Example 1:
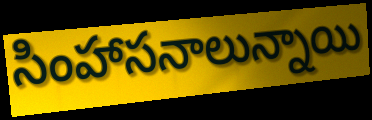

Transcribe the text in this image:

సింహాసనాలున్నాయి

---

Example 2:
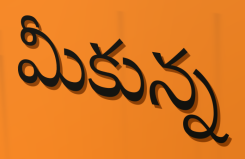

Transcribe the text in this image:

మీకున్న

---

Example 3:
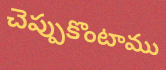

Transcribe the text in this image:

చెప్పుకొంటాము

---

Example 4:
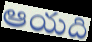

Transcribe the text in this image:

ఆయది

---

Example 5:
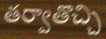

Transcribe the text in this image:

తర్వాతొచ్చి